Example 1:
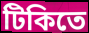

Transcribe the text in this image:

টিকিতে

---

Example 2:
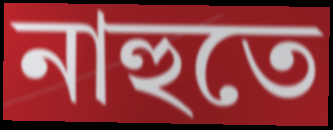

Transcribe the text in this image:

নাহুতে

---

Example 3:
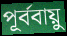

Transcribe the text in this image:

পূর্ববায়ু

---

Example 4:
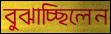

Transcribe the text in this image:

বুঝাচ্ছিলেন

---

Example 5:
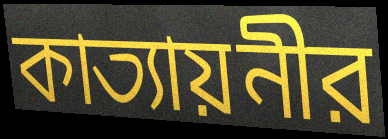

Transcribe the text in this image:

কাত্যায়নীর